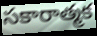
సకారాత్మక